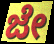
ಜೇ